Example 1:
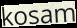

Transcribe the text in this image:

kosam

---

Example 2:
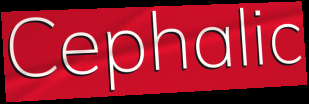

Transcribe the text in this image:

Cephalic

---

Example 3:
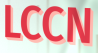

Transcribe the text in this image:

LCCN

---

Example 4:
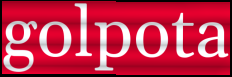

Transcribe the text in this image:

golpota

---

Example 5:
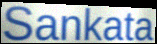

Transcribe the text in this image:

Sankata